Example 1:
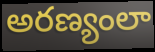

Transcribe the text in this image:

అరణ్యంలా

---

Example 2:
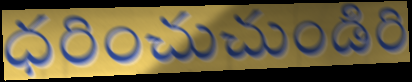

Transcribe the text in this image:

ధరించుచుండిరి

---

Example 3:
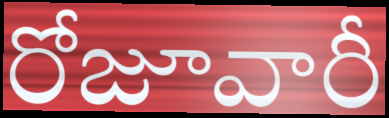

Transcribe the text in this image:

రోజూవారీ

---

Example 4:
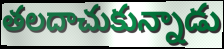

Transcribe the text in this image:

తలదాచుకున్నాడు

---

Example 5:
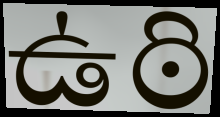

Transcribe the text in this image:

ఉఠి